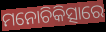
ମନୋଚିକିତ୍ସାରେ